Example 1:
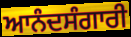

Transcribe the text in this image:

ਆਨੰਦਸੰਗਾਰੀ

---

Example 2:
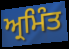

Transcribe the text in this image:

ਅ੍ਰਮਿੰਤ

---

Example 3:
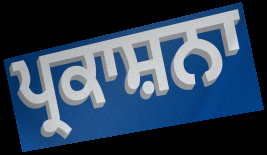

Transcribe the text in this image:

ਪ੍ਰਕਾਸ਼ਨਾ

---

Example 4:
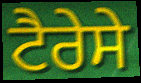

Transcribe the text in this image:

ਟੈਰੇਸੇ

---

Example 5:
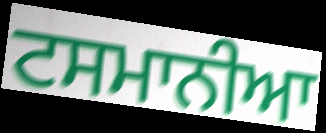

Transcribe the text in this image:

ਟਸਮਾਨੀਆ